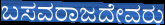
ಬಸವರಾಜದೇವರು